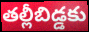
తల్లీబిడ్డకు